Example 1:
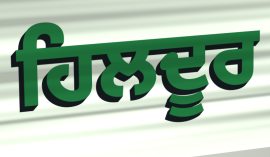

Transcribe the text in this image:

ਹਿਲਦੂਰ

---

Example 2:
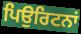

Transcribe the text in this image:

ਪਿਉਰਿਟਨਾਂ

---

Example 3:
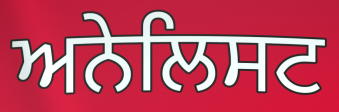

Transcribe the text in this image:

ਅਨੇਲਿਸਟ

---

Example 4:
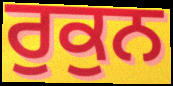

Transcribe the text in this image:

ਰੁਕੁਨ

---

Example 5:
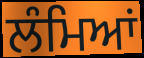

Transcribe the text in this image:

ਲੰਮਿਆਂ